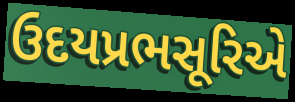
ઉદયપ્રભસૂરિએ